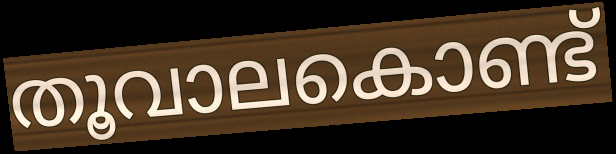
തൂവാലകൊണ്ട്